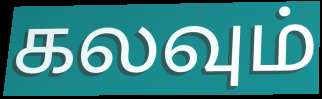
கலவும்